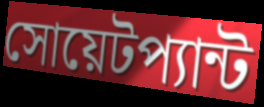
সোয়েটপ্যান্ট